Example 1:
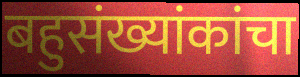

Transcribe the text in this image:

बहुसंख्यांकांचा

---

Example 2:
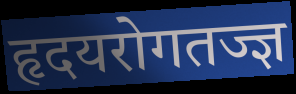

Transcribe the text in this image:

हृदयरोगतज्ज्ञ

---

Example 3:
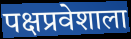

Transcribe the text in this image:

पक्षप्रवेशाला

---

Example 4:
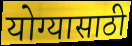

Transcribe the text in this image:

योग्यासाठी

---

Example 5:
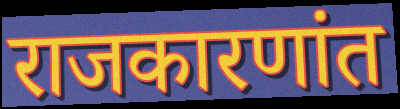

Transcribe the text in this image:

राजकारणांत